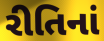
રીતિનાં